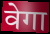
वेगा